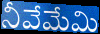
నీవేమేమి